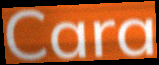
Cara